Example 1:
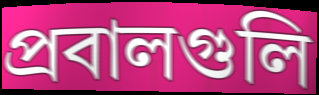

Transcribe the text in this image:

প্রবালগুলি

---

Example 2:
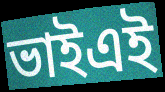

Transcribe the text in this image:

ভাইএই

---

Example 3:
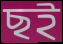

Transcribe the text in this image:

ছই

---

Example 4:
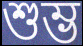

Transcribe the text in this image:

শুম্ভ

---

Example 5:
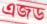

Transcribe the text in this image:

এজড